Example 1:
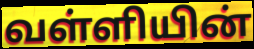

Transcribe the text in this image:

வள்ளியின்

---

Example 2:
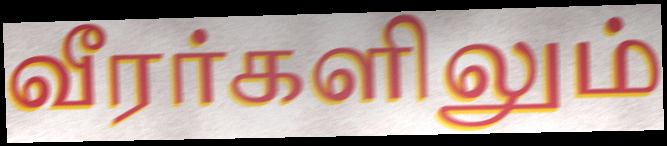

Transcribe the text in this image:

வீரர்களிலும்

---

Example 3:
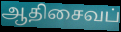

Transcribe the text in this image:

ஆதிசைவப்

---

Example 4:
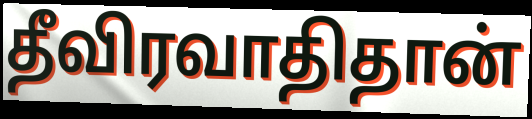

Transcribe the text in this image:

தீவிரவாதிதான்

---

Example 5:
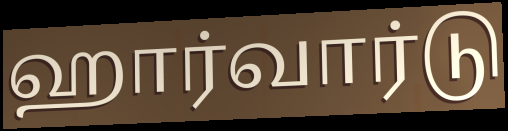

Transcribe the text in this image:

ஹார்வார்டு